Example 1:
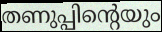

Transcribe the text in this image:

തണുപ്പിന്റെയും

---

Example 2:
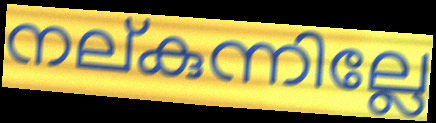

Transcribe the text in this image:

നല്കുന്നില്ലേ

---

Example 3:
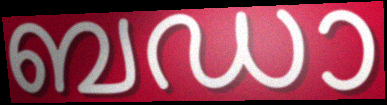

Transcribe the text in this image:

ബഡാ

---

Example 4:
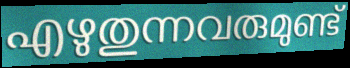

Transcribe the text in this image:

എഴുതുന്നവരുമുണ്ട്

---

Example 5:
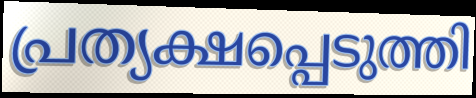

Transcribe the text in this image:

പ്രത്യക്ഷപ്പെടുത്തി